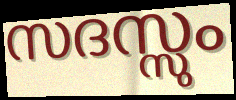
സദസ്സും